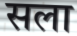
सला